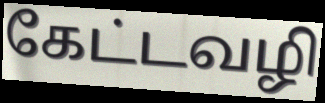
கேட்டவழி